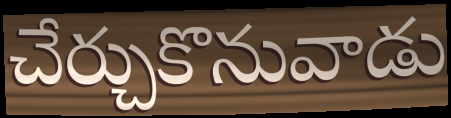
చేర్చుకొనువాడు